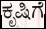
ಕೃಷಿಗೆ